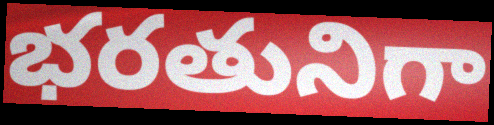
భరతునిగా